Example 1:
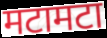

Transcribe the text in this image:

मटामटा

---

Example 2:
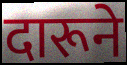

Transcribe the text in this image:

दारूने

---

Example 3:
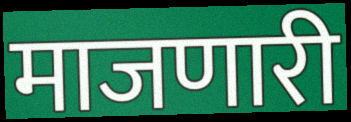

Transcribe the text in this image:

माजणारी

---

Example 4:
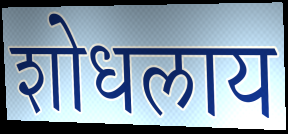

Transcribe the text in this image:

शोधलाय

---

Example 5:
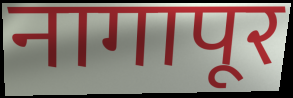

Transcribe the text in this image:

नागापूर